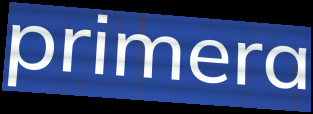
primera